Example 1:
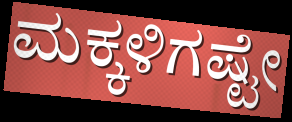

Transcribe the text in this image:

ಮಕ್ಕಳಿಗಷ್ಟೇ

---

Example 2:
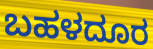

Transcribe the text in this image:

ಬಹಳದೂರ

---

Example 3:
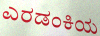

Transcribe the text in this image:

ಎರಡಂಕಿಯ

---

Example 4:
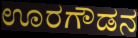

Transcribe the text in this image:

ಊರಗೌಡನ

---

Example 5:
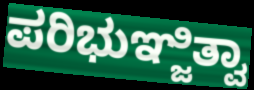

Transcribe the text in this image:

ಪರಿಭುಞ್ಜಿತ್ವಾ